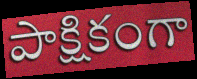
పాక్షికంగా